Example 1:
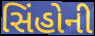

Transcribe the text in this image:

સિંહોની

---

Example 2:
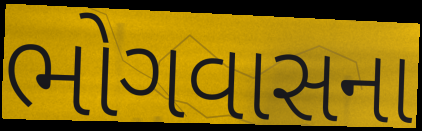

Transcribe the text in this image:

ભોગવાસના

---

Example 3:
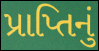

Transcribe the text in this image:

પ્રાપ્‍તિનું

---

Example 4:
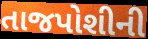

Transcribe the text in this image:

તાજપોશીની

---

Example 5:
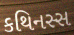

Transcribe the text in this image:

કથિનસ્સ